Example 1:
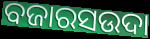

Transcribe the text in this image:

ବଜାରସଉଦା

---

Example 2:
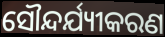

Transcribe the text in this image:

ସୌନ୍ଦର୍ଯ୍ୟୀକରଣ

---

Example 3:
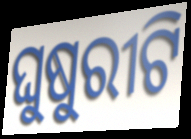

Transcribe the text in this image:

ଘୁଷୁରୀଟି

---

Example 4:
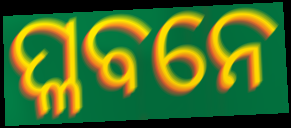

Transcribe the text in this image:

ପ୍ଳବନେ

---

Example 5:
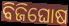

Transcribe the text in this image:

ବିଜିଘୋଷ